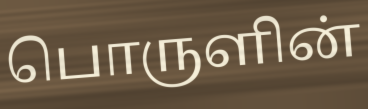
பொருளின்